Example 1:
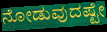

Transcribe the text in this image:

ನೋಡುವುದಷ್ಟೇ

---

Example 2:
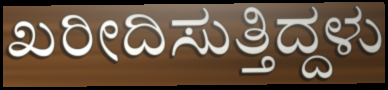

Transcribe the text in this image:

ಖರೀದಿಸುತ್ತಿದ್ದಳು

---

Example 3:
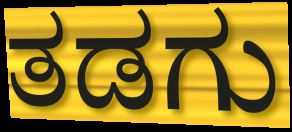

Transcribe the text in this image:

ತಡಗು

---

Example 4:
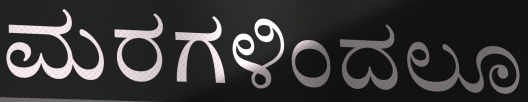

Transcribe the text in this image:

ಮರಗಳಿಂದಲೂ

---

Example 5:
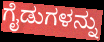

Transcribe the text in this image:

ಗೈಡುಗಳನ್ನು